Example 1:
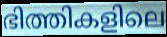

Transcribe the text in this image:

ഭിത്തികളിലെ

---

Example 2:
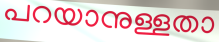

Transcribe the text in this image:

പറയാനുള്ളതാ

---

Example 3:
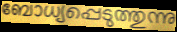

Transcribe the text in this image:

ബോധ്യപ്പെടുത്തുന്നു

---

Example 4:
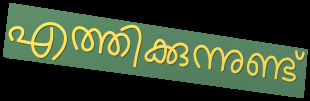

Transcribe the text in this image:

എത്തിക്കുന്നുണ്ട്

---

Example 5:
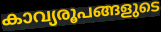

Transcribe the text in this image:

കാവ്യരൂപങ്ങളുടെ